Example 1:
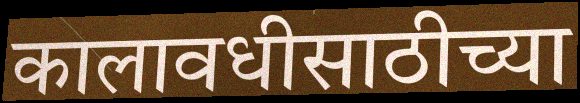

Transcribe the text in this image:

कालावधीसाठीच्या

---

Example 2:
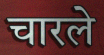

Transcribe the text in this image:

चारले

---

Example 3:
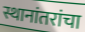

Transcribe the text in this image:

स्थानांतरांचा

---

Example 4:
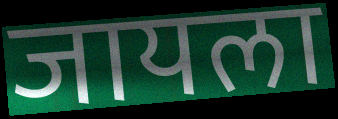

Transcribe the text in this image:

जायला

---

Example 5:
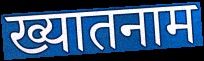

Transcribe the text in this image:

ख्यातनाम